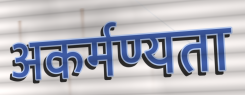
अकर्मण्यता